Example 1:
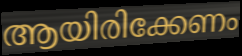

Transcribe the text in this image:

ആയിരിക്കേണം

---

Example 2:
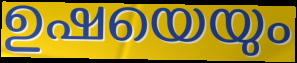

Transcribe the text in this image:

ഉഷയെയും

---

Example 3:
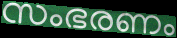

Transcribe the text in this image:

സംഭരണം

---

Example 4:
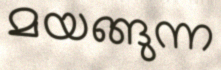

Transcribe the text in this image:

മയങ്ങുന്ന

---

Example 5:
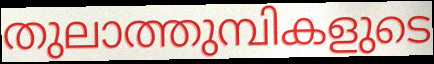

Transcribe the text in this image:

തുലാത്തുമ്പികളുടെ